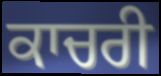
ਕਾਚਰੀ